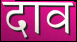
दाव